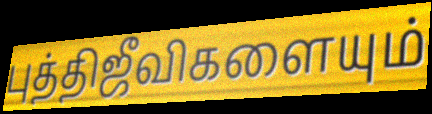
புத்திஜீவிகளையும்